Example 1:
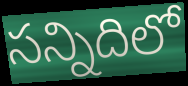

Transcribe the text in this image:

సన్నిదిలో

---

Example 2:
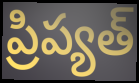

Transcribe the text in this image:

ప్రిప్యత్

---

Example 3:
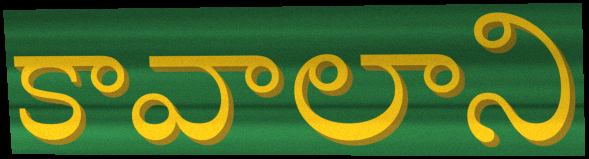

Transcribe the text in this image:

కావాలాని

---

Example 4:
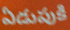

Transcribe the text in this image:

ఏడుపుకి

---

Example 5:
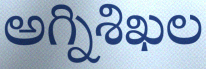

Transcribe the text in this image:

అగ్నిశిఖల